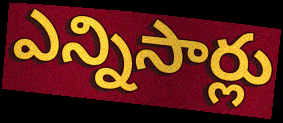
ఎన్నిసార్లు